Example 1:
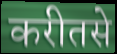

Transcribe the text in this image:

करीतसे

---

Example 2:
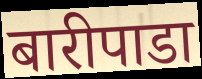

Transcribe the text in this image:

बारीपाडा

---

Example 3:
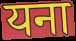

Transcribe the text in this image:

यना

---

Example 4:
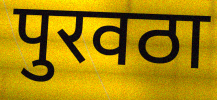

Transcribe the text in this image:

पुरवठा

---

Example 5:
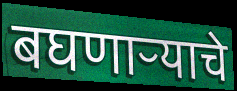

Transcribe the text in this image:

बघणाऱ्याचे